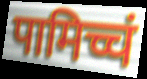
पामिच्चं